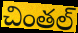
చింతల్